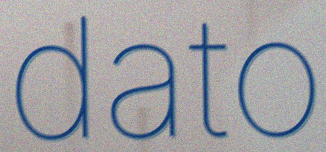
dato